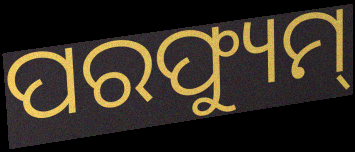
ପରଫ୍ୟୁମ୍